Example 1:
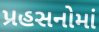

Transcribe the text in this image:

પ્રહસનોમાં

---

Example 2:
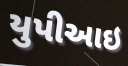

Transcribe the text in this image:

યુપીઆઇ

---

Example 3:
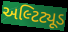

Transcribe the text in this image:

અલ્ટિટ્યૂડ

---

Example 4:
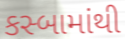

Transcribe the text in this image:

કસ્બામાંથી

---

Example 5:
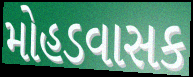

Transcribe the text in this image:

મોહડવાસક